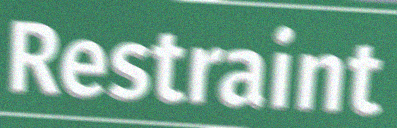
Restraint